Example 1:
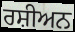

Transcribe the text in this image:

ਰਸ਼ੀਅਨ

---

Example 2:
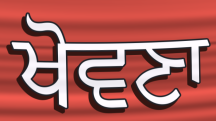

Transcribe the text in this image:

ਖੋਵਣਾ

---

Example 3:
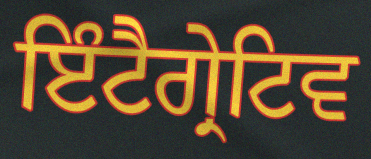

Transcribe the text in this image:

ਇੰਟੈਗ੍ਰੇਟਿਵ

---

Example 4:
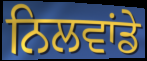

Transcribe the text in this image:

ਨਿਲਵਾਂਡੇ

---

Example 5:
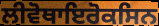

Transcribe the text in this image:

ਲੀਵੋਥਾਇਰੋਕਸਿਨ